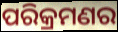
ପରିକ୍ରମଣର